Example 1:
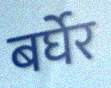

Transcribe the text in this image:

बर्घेर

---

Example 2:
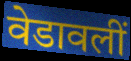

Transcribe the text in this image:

वेडावलीं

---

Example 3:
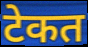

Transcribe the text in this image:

टेकत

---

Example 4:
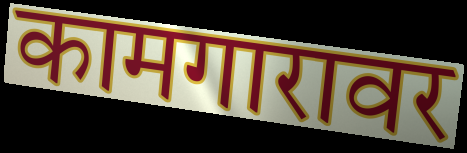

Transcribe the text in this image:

कामगारावर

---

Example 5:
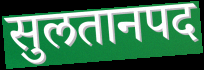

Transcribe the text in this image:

सुलतानपद